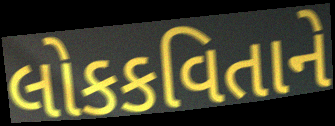
લોકકવિતાને